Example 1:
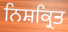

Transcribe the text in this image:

ਨਿਸ਼ਕ੍ਰਿਤ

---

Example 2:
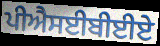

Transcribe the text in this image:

ਪੀਐਸਈਬੀਈਏ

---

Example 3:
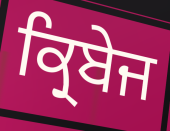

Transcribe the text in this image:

ਕ੍ਰਿਬੇਜ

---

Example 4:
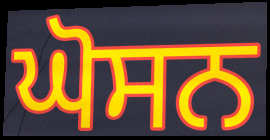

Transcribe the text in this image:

ਘੋਸਨ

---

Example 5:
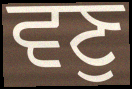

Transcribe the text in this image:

ਵਣੁ